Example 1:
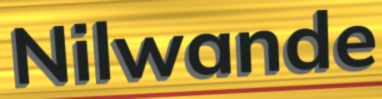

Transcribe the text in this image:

Nilwande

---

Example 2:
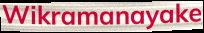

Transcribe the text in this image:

Wikramanayake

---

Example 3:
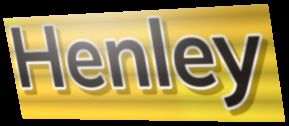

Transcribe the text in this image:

Henley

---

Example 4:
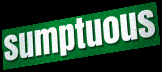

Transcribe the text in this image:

sumptuous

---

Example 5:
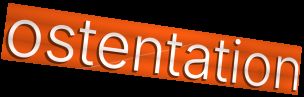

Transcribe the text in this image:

ostentation